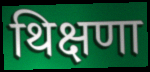
थिक्षणा